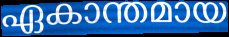
ഏകാന്തമായ